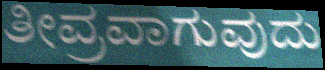
ತೀವ್ರವಾಗುವುದು